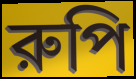
রুপি